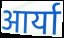
आर्या